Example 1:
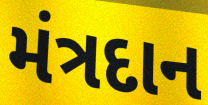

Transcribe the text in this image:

મંત્રદાન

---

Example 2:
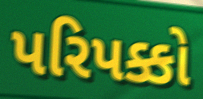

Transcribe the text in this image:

પરિપક્કો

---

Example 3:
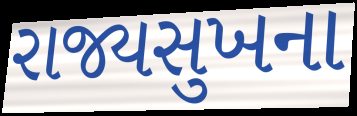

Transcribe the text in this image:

રાજ્યસુખના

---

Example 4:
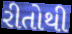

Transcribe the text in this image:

રીતોથી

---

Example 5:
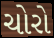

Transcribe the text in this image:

ચોરો